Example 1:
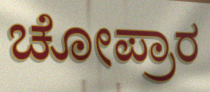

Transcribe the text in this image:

ಚೋಪ್ರಾರ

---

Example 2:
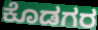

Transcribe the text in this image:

ಕೊಡಗರ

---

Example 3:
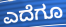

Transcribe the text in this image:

ಎದೆಗೂ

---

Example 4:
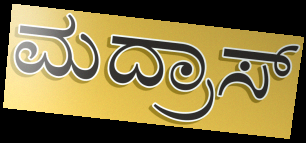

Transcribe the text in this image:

ಮದ್ರಾಸ್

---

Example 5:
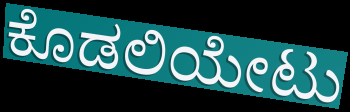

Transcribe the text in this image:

ಕೊಡಲಿಯೇಟು